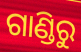
ଗାଣ୍ଡିରୁ